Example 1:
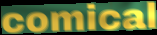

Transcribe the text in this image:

comical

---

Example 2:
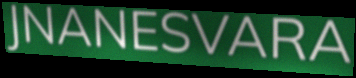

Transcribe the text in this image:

JNANESVARA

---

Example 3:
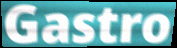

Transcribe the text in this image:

Gastro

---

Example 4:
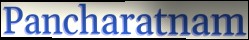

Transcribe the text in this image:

Pancharatnam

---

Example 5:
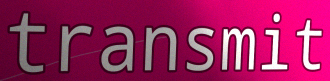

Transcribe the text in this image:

transmit